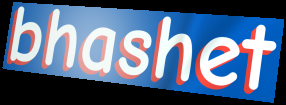
bhashet